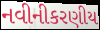
નવીનીકરણીય